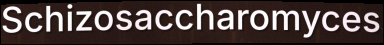
Schizosaccharomyces